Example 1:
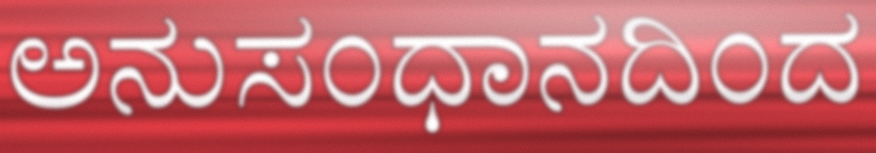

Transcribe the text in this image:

ಅನುಸಂಧಾನದಿಂದ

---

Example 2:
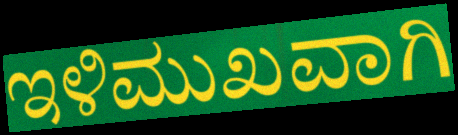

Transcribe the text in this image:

ಇಳಿಮುಖವಾಗಿ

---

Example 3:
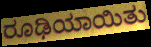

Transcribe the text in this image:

ರೂಢಿಯಾಯಿತು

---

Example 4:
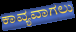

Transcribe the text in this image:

ಕಾವ್ಯವಾಗಲು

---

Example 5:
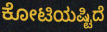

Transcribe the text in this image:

ಕೋಟಿಯಷ್ಟಿದೆ